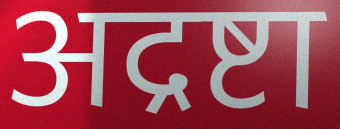
अद्रष्टा